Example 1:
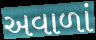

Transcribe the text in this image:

અવાળાં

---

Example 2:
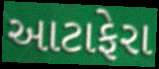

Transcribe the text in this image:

આટાફેરા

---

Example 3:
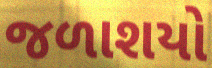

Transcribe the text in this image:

જળાશયો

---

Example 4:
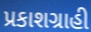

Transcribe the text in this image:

પ્રકાશગ્રાહી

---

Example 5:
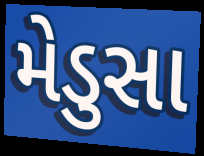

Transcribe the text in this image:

મેડુસા